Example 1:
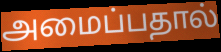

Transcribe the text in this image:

அமைப்பதால்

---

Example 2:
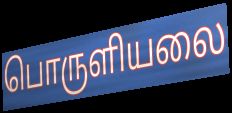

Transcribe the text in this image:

பொருளியலை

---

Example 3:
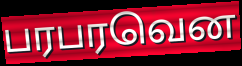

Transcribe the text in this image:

பரபரவென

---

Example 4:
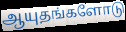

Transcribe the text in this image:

ஆயுதங்களோடு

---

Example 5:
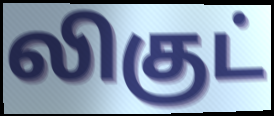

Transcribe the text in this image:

லிகுட்